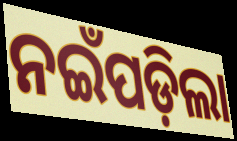
ନଇଁପଡ଼ିଲା